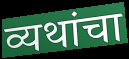
व्यथांचा